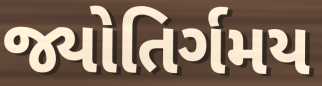
જ્યોતિર્ગમય